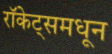
रॉकेट्समधून